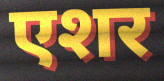
एशर